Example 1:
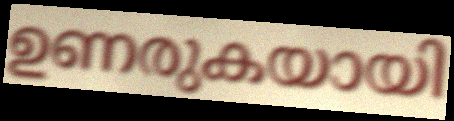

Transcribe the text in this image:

ഉണരുകയായി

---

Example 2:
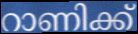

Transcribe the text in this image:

റാണിക്ക്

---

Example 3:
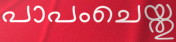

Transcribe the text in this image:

പാപംചെയ്തു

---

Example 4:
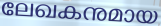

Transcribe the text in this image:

ലേഖകനുമായ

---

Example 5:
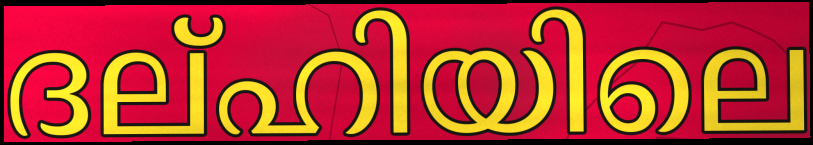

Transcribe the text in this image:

ദല്ഹിയിലെ